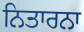
ਨਿਤਾਰਨਾ